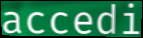
accedi